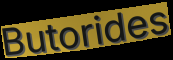
Butorides